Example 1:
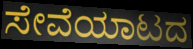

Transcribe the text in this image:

ಸೇವೆಯಾಟದ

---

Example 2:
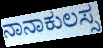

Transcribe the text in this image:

ನಾನಾಕುಲಸ್ಸ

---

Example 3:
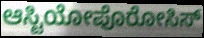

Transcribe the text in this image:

ಆಸ್ಟಿಯೋಪೊರೋಸಿಸ್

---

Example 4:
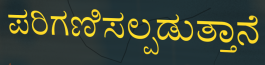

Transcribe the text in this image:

ಪರಿಗಣಿಸಲ್ಪಡುತ್ತಾನೆ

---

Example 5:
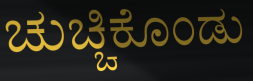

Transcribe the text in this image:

ಚುಚ್ಚಿಕೊಂಡು